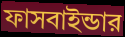
ফাসবাইন্ডার